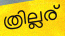
ത്രില്ലര്